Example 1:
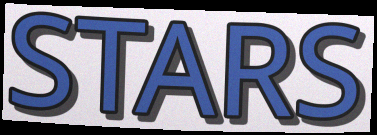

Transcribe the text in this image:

STARS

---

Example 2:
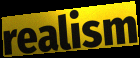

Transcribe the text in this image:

realism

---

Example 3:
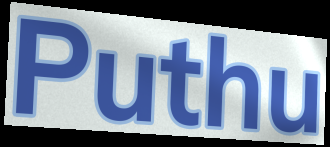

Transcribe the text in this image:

Puthu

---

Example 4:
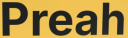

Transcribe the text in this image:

Preah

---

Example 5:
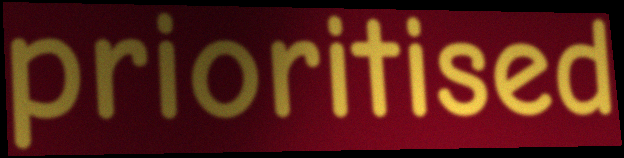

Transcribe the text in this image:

prioritised